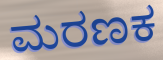
ಮರಣಕ